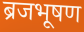
ब्रजभूषण